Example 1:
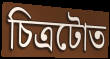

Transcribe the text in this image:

চিত্ৰটোত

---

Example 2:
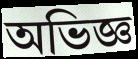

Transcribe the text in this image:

অভিজ্ঞ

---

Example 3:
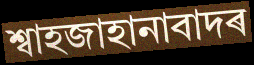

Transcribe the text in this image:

শ্বাহজাহানাবাদৰ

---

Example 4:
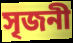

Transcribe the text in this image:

সৃজনী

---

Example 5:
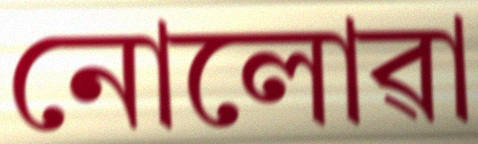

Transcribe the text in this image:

নোলোৱা